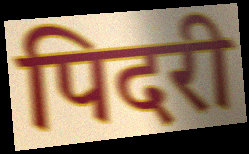
पिदरी